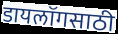
डायलॉगसाठी